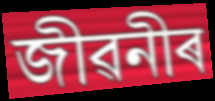
জীৱনীৰ